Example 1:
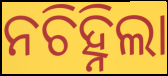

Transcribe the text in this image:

ନଚିହ୍ନିଲା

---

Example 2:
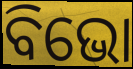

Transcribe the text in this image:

ବିଭୋ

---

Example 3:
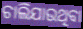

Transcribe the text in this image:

ଚାଲିଯାଉଥିବା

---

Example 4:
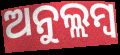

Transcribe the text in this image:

ଅନୁଲ୍ଲମ୍ବ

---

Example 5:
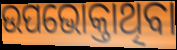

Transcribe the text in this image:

ଉପଭୋକ୍ତାଥିବା